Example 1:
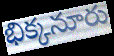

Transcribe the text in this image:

భిక్కనూరు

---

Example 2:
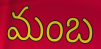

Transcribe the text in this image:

మంబ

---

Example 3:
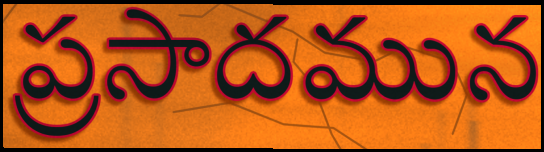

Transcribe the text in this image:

ప్రసాదమున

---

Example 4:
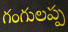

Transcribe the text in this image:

గంగులప్ప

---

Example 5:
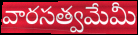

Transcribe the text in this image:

వారసత్వమేమీ